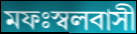
মফঃস্বলবাসী